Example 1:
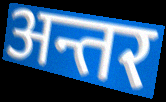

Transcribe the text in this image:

अन्‍तर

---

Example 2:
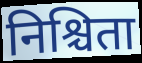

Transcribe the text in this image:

निश्चिता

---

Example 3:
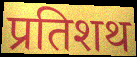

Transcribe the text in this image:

प्रतिशथ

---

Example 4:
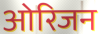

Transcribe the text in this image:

ओरिजन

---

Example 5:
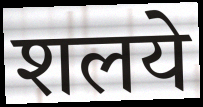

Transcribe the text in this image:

शलये